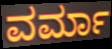
ವರ್ಮಾ